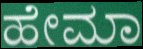
ಹೇಮಾ